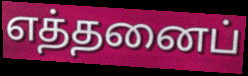
எத்தனைப்